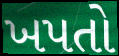
ખપતો